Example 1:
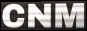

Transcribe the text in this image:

CNM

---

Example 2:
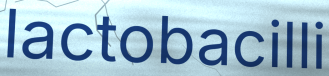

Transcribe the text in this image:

lactobacilli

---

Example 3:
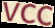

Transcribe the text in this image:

vcc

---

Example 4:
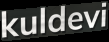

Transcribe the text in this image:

kuldevi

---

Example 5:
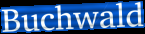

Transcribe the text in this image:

Buchwald